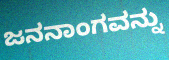
ಜನನಾಂಗವನ್ನು